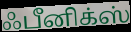
ஃபீனிக்ஸ்